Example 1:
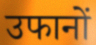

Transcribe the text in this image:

उफानों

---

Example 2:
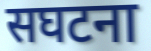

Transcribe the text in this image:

सघटना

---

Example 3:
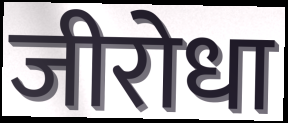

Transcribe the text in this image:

जीरोधा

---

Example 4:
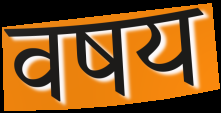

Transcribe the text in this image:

वषय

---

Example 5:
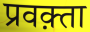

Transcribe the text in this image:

प्रवक़्ता